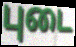
புடை